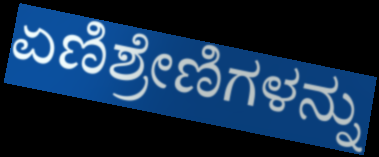
ಏಣಿಶ್ರೇಣಿಗಳನ್ನು